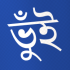
ভুঁই